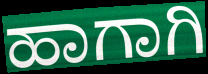
ಹಾಗಾಗಿ